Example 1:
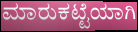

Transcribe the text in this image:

ಮಾರುಕಟ್ಟೆಯಾಗಿ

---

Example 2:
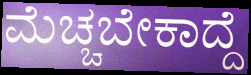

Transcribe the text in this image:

ಮೆಚ್ಚಬೇಕಾದ್ದೆ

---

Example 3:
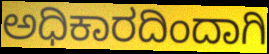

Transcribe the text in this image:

ಅಧಿಕಾರದಿಂದಾಗಿ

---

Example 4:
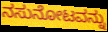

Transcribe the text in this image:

ನಸುನೋಟವನ್ನು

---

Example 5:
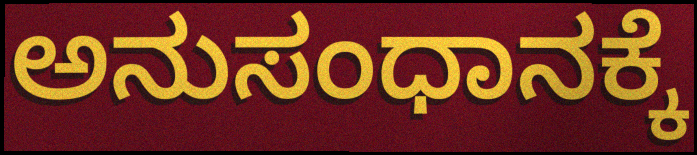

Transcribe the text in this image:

ಅನುಸಂಧಾನಕ್ಕೆ